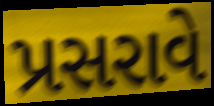
પ્રસરાવે